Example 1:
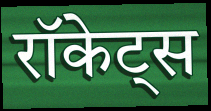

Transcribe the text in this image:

रॉकेट्स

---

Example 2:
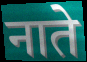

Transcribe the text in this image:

नाते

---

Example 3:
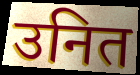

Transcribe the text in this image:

उनित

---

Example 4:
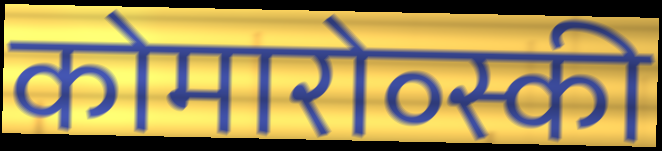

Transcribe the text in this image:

कोमारोव्स्की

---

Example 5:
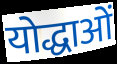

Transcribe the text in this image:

योद्धाओं